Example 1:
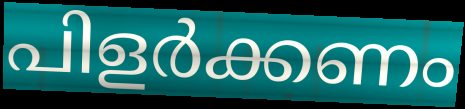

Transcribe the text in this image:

പിളർക്കണം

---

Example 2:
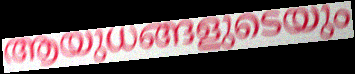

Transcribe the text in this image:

ആയുധങ്ങളുടെയും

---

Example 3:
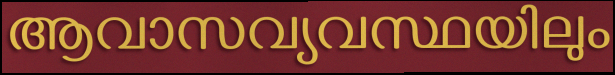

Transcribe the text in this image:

ആവാസവ്യവസ്ഥയിലും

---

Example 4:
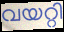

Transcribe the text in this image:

വയറ്റി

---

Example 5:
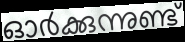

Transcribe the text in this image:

ഓർക്കുന്നുണ്ട്